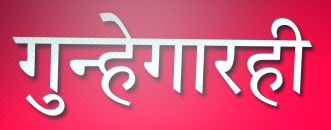
गुन्हेगारही